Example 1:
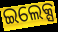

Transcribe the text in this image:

ଇଲେକ୍ସ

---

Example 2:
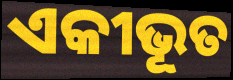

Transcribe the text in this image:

ଏକୀଭୂତ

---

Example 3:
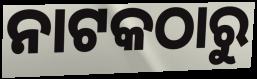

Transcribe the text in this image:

ନାଟକଠାରୁ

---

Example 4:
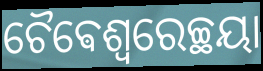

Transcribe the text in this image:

ଚୈଵେଶ୍ଵରେଚ୍ଛୟା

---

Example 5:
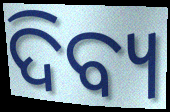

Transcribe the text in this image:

ଦିବ୍ୟ